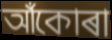
আঁকোৰা